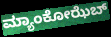
ಮ್ಯಾಂಕೋಝೆಬ್